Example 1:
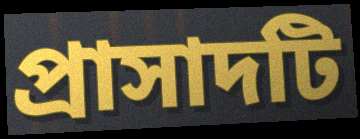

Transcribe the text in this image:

প্রাসাদটি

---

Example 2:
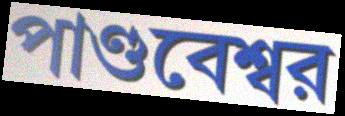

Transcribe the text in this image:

পাণ্ডবেশ্বর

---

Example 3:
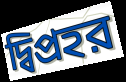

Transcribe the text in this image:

দ্বিপ্রহর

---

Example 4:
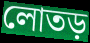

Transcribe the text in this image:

লোতড়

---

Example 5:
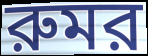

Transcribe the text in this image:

রুমর